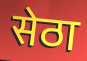
सेठा